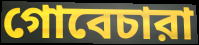
গোবেচারা